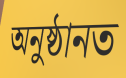
অনুষ্ঠানত